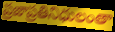
ప్రజాప్రతినిధులంతా